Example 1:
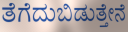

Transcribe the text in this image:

ತೆಗೆದುಬಿಡುತ್ತೇನೆ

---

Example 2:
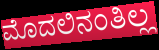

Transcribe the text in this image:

ಮೊದಲಿನಂತಿಲ್ಲ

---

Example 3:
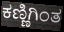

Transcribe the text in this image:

ಕಣ್ಣಿಗಿಂತ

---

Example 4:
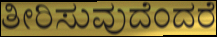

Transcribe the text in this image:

ತೀರಿಸುವುದೆಂದರೆ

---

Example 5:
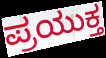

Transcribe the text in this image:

ಪ್ರಯುಕ್ತ